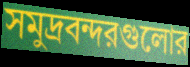
সমুদ্রবন্দরগুলোর